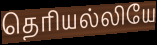
தெரியல்லியே